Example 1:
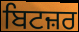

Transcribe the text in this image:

ਬਿਟਜ਼ਰ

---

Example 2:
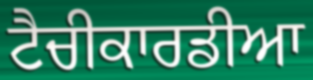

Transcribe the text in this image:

ਟੈਚੀਕਾਰਡੀਆ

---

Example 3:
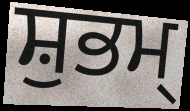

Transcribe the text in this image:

ਸ਼ੁਭਮ੍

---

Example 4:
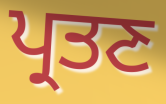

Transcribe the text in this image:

ਪ੍ਰਤਣ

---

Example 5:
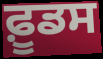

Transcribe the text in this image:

ਫ਼ੂਡਸ